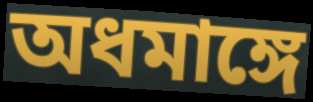
অধমাঙ্গে